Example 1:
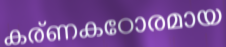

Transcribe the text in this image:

കര്ണകഠോരമായ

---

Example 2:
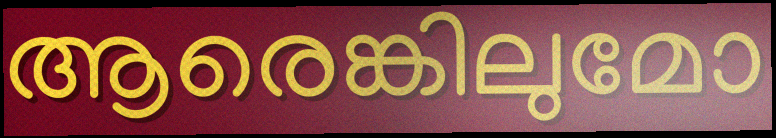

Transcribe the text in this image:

ആരെങ്കിലുമോ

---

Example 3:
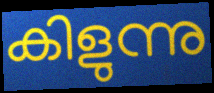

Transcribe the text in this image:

കിളുന്നു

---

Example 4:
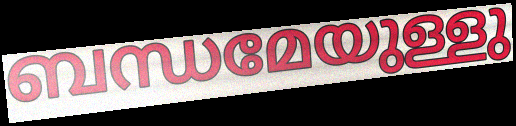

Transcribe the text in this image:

ബന്ധമേയുള്ളു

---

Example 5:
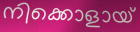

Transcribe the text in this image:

നിക്കൊളായ്